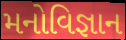
મનોવિજ્ઞાન